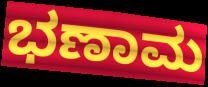
ಭಣಾಮ